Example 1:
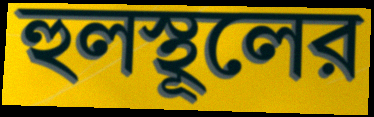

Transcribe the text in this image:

হুলস্থূলের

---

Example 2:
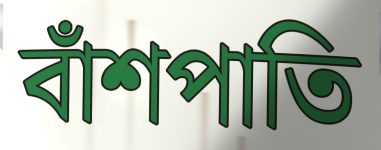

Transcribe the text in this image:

বাঁশপাতি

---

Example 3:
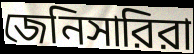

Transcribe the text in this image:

জেনিসারিরা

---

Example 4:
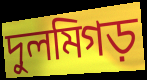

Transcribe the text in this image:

দুলমিগড়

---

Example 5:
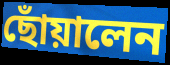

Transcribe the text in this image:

ছোঁয়ালেন